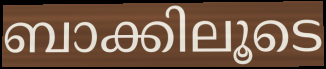
ബാക്കിലൂടെ